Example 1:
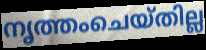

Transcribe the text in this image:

നൃത്തംചെയ്തില്ല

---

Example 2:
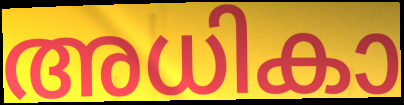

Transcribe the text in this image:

അധികാ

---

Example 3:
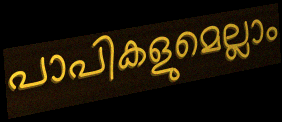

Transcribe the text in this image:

പാപികളുമെല്ലാം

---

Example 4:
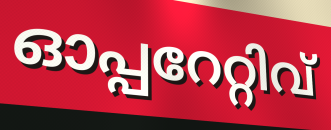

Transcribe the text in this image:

ഓപ്പറേറ്റിവ്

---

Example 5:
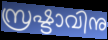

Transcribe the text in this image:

സ്രഷ്ടാവിനു